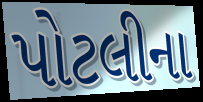
પોટલીના